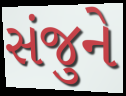
સંજુને